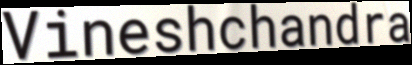
Vineshchandra